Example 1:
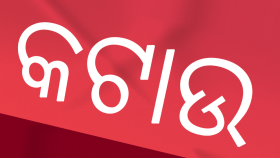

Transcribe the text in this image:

କଟାଉ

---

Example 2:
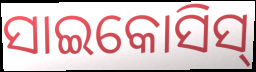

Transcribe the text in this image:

ସାଇକୋସିସ୍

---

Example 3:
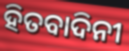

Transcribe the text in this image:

ହିତବାଦିନୀ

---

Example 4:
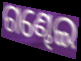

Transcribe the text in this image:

ଗଣ୍ଢେଇ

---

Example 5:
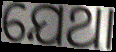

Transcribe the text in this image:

ଯେଥା